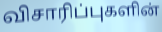
விசாரிப்புகளின்